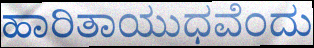
ಹಾರಿತಾಯುಧವೆಂದು